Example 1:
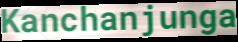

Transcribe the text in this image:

Kanchanjunga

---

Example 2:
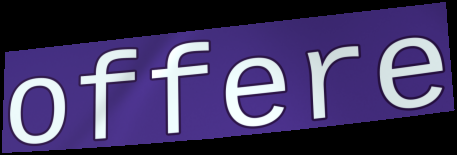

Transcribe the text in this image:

offere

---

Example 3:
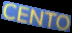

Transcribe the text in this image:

CENTO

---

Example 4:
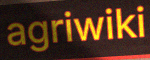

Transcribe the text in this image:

agriwiki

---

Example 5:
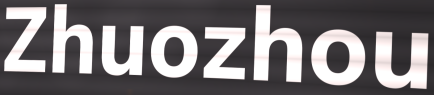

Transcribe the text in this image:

Zhuozhou